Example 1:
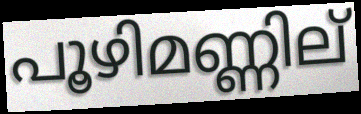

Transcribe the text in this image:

പൂഴിമണ്ണില്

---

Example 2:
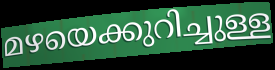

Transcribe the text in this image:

മഴയെക്കുറിച്ചുള്ള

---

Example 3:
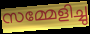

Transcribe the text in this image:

സമ്മേളിച്ചു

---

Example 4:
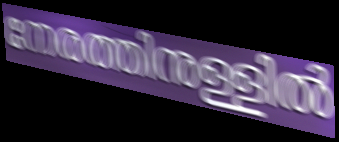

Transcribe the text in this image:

നേരത്തിനുള്ളിൽ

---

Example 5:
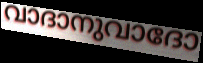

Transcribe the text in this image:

വാദാനുവാദോ